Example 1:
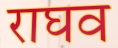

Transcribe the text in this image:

राघव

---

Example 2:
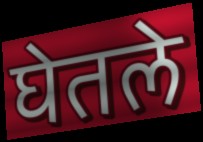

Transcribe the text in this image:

घेतले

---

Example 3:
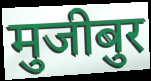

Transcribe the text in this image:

मुजीबुर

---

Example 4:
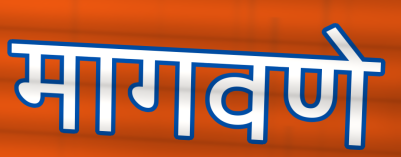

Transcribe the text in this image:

मागवणे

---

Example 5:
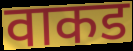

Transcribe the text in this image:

वाकड